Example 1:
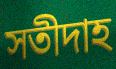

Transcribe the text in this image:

সতীদাহ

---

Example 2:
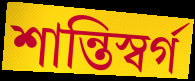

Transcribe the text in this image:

শান্তিস্বর্গ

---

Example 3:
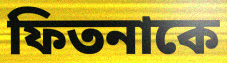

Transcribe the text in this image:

ফিতনাকে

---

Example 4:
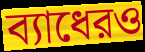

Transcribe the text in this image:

ব্যাধেরও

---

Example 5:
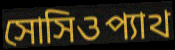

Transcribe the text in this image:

সোসিওপ্যাথ